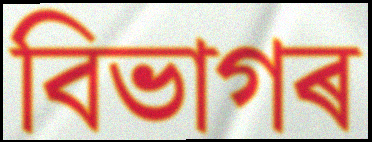
বিভাগৰ